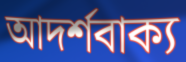
আদর্শবাক্য